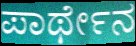
ಪಾರ್ಥೇನ